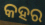
କହର